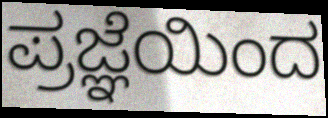
ಪ್ರಜ್ಞೆಯಿಂದ